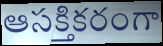
ఆసక్తికరంగా